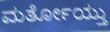
ಮರ್ತೋಯ್ತು